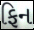
ફિન